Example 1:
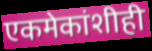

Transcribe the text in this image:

एकमेकांशीही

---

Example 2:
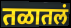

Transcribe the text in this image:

तळातलं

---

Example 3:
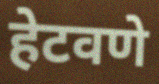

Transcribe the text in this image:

हेटवणे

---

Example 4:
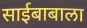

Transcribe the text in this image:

साईबाबाला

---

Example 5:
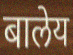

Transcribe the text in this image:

बालेय